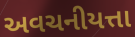
અવચનીયત્તા